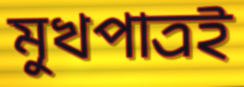
মুখপাত্রই